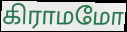
கிராமமோ